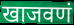
खाजवणं